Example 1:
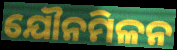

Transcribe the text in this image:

ଯୌନମିଳନ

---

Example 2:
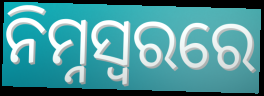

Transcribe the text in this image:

ନିମ୍ନସ୍ଵରରେ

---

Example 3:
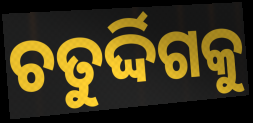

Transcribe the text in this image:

ଚତୁର୍ଦ୍ଦିଗକୁ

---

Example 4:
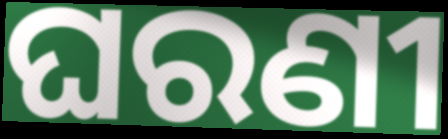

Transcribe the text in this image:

ଘରଣୀ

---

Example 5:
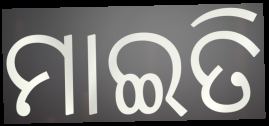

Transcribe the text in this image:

ମାଇତି